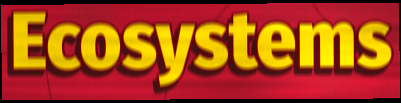
Ecosystems